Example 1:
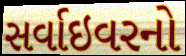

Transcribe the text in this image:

સર્વાઇવરનો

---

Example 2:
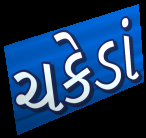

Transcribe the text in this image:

ચકેડાં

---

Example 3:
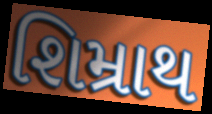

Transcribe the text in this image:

શિમ્રાથ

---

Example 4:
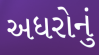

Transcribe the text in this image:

અધરોનું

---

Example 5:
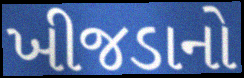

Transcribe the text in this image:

ખીજડાનો